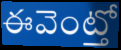
ఈవెంట్తో